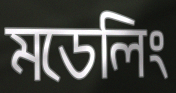
মডেলিং